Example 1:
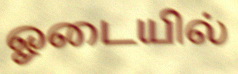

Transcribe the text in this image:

ஓடையில்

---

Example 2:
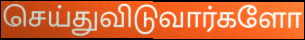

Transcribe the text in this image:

செய்துவிடுவார்களோ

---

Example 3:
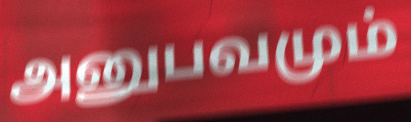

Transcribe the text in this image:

அனுபவமும்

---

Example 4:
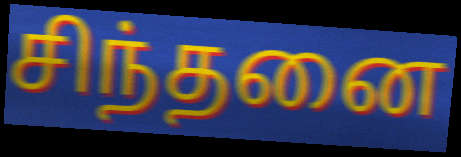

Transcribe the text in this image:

சிந்தனை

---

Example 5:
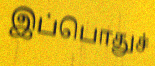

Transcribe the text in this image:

இப்பொதுச்